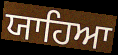
ਯਾਹਿਆ